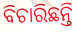
ବିଚାରିଛନ୍ତି